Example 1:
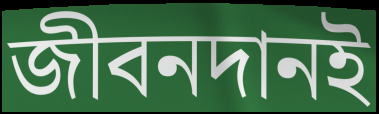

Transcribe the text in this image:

জীবনদানই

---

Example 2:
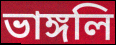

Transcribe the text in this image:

ভাঙ্গলি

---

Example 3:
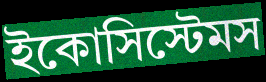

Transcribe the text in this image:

ইকোসিস্টেমস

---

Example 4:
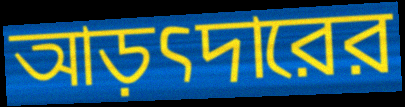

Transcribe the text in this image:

আড়ৎদারের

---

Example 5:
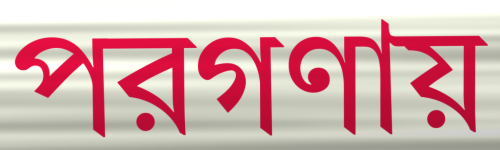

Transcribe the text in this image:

পরগণায়